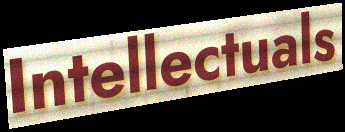
Intellectuals